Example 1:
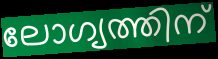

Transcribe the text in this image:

ലോഗ്യത്തിന്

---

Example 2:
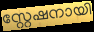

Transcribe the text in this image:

സ്റ്റേഷനായി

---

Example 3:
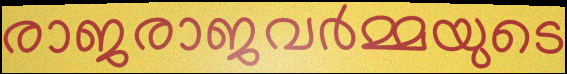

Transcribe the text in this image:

രാജരാജവർമ്മയുടെ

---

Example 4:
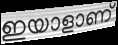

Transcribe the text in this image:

ഇയാളാണ്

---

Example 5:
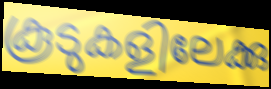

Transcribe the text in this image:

കൂടുകളിലേക്കു